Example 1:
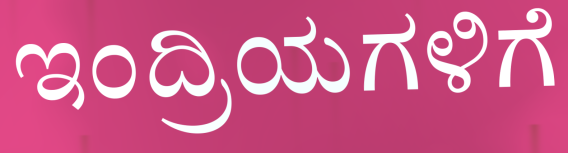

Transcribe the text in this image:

ಇಂದ್ರಿಯಗಳಿಗೆ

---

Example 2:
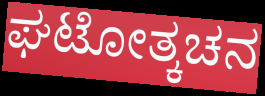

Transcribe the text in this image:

ಘಟೋತ್ಕಚನ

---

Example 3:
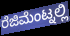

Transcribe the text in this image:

ರೆಜಿಮೆಂಟ್ನಲ್ಲಿ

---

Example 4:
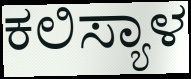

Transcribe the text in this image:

ಕಲಿಸ್ಯಾಳ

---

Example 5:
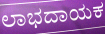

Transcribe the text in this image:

ಲಾಭದಾಯಕ